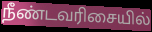
நீண்டவரிசையில்